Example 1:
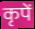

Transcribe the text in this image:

कृपें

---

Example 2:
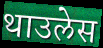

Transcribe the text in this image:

थाउलेस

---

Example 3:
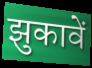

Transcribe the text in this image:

झुकावें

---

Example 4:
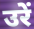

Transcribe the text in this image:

उरें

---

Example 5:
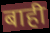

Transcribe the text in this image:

बाही